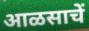
आळसाचें